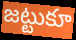
జట్టుకూ